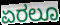
ಏರಲೂ